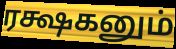
ரக்ஷகனும்